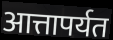
आत्तापर्यत